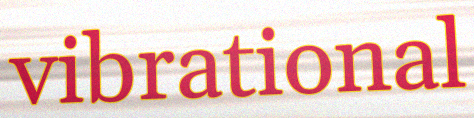
vibrational